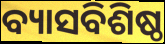
ବ୍ୟାସବିଶିଷ୍ଠ